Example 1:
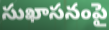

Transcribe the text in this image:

సుఖాసనంపై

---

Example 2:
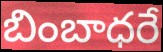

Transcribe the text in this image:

బింబాధరే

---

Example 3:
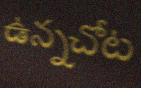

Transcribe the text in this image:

ఉన్నచోట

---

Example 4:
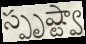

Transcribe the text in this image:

స్పృష్ట్వా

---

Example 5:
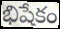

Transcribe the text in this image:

భిషేకం